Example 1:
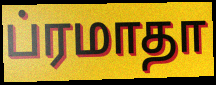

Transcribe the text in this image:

ப்ரமாதா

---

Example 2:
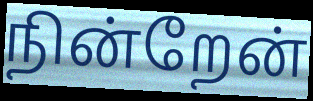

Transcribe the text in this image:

நின்றேன்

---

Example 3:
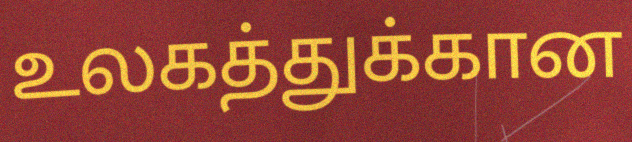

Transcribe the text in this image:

உலகத்துக்கான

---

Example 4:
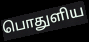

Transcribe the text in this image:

பொதுளிய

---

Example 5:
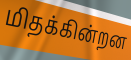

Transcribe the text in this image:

மிதக்கின்றன